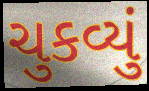
ચુકવ્યું